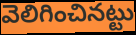
వెలిగించినట్టు